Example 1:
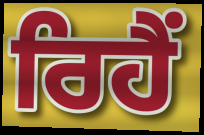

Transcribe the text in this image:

ਰਿਹੈੰ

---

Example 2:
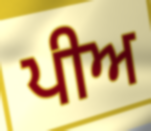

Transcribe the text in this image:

ਪੀਅ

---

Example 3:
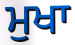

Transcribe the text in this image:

ਮੁਖਾ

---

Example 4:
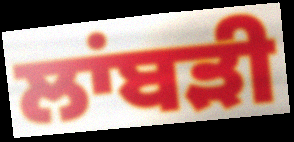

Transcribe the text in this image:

ਲਾਂਬੜੀ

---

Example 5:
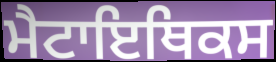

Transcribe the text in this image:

ਮੈਟਾਇਥਿਕਸ